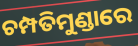
ଚମ୍ପତିମୁଣ୍ଡାରେ